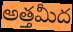
అత్తమీద